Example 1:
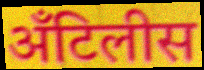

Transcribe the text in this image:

अँटिलीस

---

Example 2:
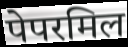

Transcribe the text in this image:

पेपरमिल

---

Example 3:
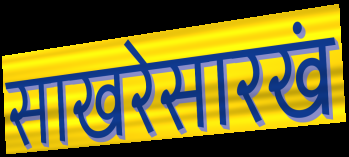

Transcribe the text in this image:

साखरेसारखं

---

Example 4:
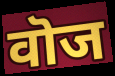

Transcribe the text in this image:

वॊज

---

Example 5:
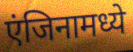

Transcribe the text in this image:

एंजिनामध्ये